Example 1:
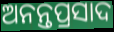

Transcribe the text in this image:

ଅନନ୍ତପ୍ରସାଦ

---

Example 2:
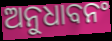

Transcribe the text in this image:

ଅନୁଧାବନଂ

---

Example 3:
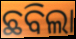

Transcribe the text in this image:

ଛବିଲା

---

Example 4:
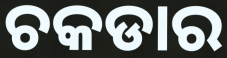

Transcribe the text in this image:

ଚକଡାର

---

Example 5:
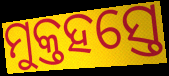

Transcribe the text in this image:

ମୁକ୍ତହସ୍ତେ